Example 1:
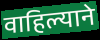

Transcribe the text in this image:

वाहिल्याने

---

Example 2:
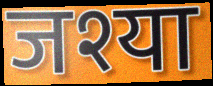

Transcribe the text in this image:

जश्या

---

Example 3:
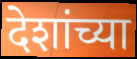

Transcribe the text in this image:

देशांच्या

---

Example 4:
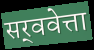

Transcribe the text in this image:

सर्ववेत्ता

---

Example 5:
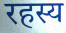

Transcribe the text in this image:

रहस्य